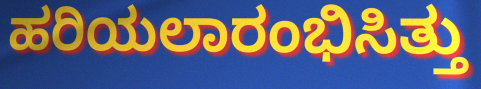
ಹರಿಯಲಾರಂಭಿಸಿತ್ತು